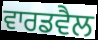
ਵਾਰਡਵੈਲ